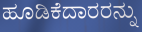
ಹೂಡಿಕೆದಾರರನ್ನು